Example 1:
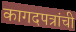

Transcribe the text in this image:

कागदपत्रांची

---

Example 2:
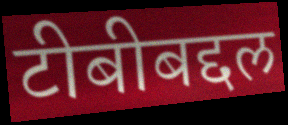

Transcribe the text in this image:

टीबीबद्दल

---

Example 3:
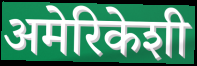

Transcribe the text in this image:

अमेरिकेशी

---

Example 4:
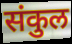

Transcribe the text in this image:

संकुल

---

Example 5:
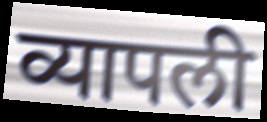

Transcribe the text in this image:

व्यापली